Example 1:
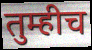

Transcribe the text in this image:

तुम्हीच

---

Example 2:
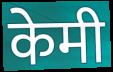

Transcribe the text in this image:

केमी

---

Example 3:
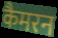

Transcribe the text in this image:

कैमरन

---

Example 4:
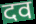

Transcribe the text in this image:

दव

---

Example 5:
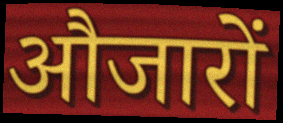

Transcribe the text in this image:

औजारों